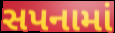
સપનામાં